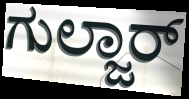
ಗುಲ್ಜಾರ್